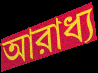
আরাধ্য